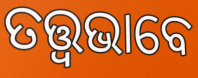
ତତ୍ତ୍ଵଭାବେ